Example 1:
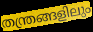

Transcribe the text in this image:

തന്ത്രങ്ങളിലും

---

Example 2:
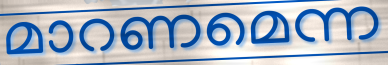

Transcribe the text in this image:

മാറണമെന്ന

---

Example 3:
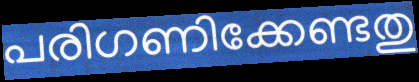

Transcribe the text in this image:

പരിഗണിക്കേണ്ടതു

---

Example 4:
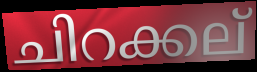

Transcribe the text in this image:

ചിറക്കല്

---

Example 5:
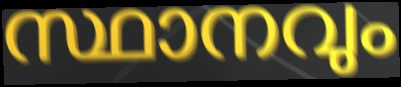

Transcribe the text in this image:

സ്ഥാനവും